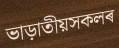
ভাড়াতীয়সকলৰ